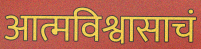
आत्मविश्वासाचं